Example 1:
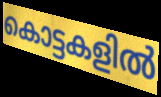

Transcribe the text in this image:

കൊട്ടകളിൽ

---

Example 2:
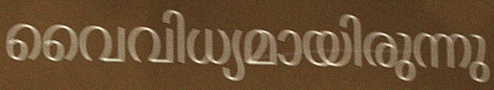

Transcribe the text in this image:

വൈവിധ്യമായിരുന്നു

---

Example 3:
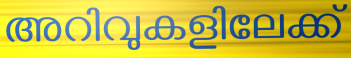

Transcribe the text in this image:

അറിവുകളിലേക്ക്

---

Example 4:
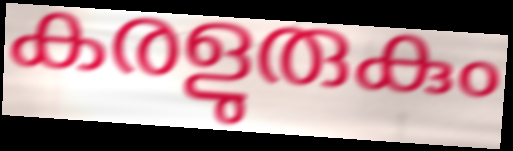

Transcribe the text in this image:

കരളുരുകും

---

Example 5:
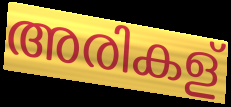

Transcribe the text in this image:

അരികള്